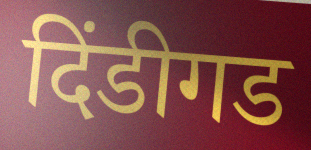
दिंडीगड